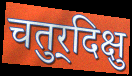
चतुर्दिक्षु